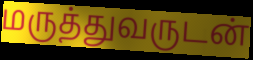
மருத்துவருடன்